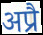
अप्रै